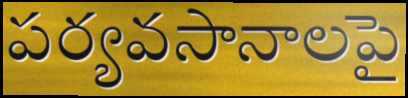
పర్యవసానాలపై